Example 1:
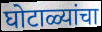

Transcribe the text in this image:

घोटाळ्यांचा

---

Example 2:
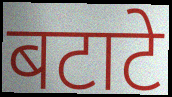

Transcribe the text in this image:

बटाटे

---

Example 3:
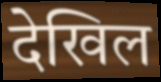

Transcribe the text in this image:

देखिल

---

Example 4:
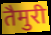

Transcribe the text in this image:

तैमुरी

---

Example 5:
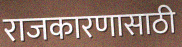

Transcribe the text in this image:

राजकारणासाठी